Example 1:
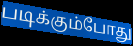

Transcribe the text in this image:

படிக்கும்போது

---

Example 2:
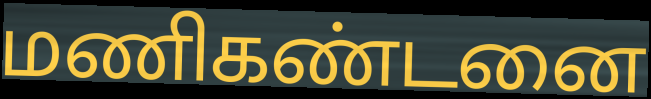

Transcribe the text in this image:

மணிகண்டனை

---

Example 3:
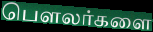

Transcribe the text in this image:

பௌலர்களை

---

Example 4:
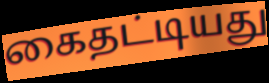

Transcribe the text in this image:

கைதட்டியது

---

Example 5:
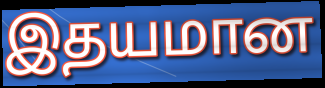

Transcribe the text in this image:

இதயமான